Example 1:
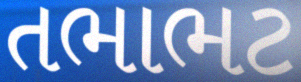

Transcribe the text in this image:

તભાભટ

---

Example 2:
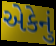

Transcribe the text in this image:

એકેનું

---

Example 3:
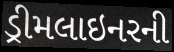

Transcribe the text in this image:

ડ્રીમલાઇનરની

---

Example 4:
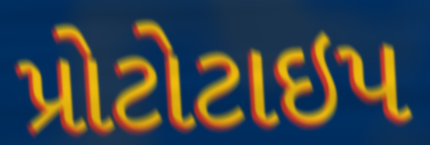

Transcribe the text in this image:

પ્રોટોટાઇપ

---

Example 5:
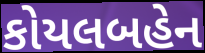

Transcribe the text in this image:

કોયલબહેન